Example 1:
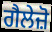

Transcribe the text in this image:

ਗੈਲੇਜ਼ੋ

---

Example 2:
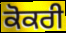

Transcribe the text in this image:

ਕੋਕਰੀ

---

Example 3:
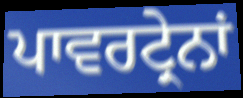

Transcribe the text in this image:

ਪਾਵਰਟ੍ਰੇਨਾਂ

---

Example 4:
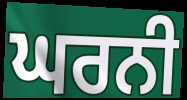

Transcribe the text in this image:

ਘਰਨੀ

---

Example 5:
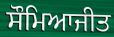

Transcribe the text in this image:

ਸੌਮਿਆਜੀਤ